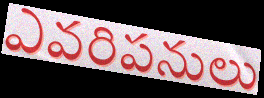
ఎవరిపనులు